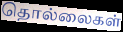
தொல்லைகள்